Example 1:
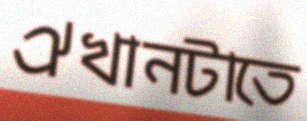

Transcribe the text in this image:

ঐখানটাতে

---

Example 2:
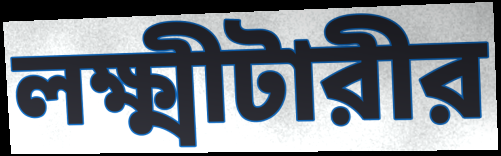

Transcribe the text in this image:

লক্ষ্মীটারীর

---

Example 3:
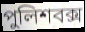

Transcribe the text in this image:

পুলিশবক্স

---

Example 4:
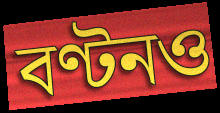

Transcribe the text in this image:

বণ্টনও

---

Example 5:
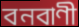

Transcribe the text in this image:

বনবাণী